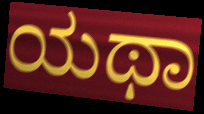
ಯಥಾ